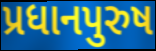
પ્રધાનપુરુષ